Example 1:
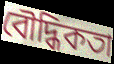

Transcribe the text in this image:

বৌদ্ধিকতা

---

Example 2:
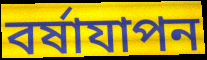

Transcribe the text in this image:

বর্ষাযাপন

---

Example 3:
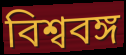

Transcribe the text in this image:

বিশ্ববঙ্গ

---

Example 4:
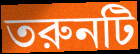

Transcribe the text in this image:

তরুনটি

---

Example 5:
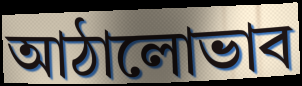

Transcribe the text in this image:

আঠালোভাব